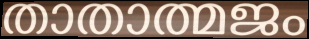
താതാത്മജം